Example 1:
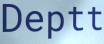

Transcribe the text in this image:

Deptt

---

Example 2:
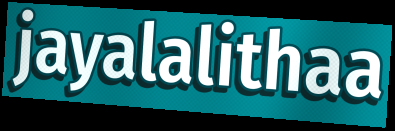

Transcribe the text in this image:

jayalalithaa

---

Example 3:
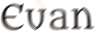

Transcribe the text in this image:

Euan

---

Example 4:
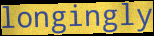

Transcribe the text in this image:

longingly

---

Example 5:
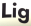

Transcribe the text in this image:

Lig